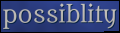
possiblity